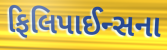
ફિલિપાઈન્સના